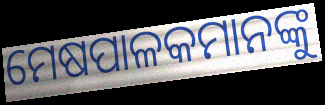
ମେଷପାଳକମାନଙ୍କୁ